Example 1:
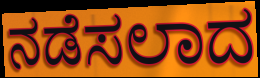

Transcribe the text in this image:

ನಡೆಸಲಾದ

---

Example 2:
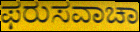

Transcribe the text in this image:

ಫರುಸವಾಚಾ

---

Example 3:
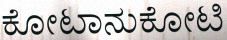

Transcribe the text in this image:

ಕೋಟಾನುಕೋಟಿ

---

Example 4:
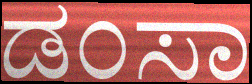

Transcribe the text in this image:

ಡಂಸಾ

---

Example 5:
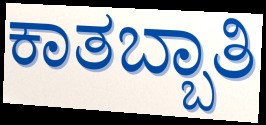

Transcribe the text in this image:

ಕಾತಬ್ಬಾತಿ